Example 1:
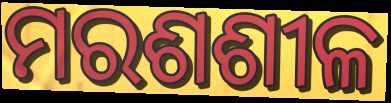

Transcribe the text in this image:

ମରଶଶୀଳ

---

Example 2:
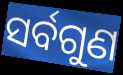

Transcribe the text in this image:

ସର୍ବଗୁଣ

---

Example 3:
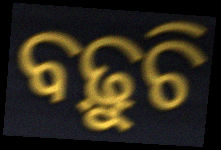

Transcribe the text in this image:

ବଢ଼ୁଚି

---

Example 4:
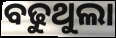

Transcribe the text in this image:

ବଢୁଥୁଲା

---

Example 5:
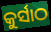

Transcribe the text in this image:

କୁର୍ସାଠ